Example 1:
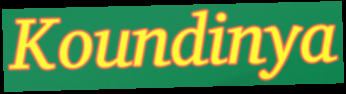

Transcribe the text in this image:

Koundinya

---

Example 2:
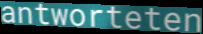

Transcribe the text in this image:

antworteten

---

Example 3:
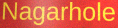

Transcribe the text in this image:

Nagarhole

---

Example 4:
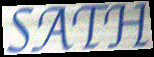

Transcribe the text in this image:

SATH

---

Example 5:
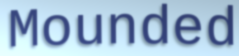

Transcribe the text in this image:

Mounded